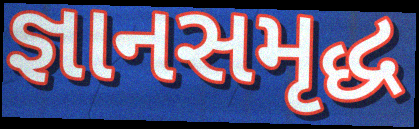
જ્ઞાનસમૃદ્ધ